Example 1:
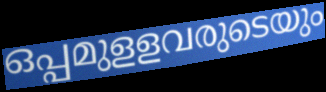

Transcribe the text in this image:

ഒപ്പമുളളവരുടെയും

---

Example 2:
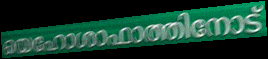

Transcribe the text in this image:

യെഹോശാഫാത്തിനോട്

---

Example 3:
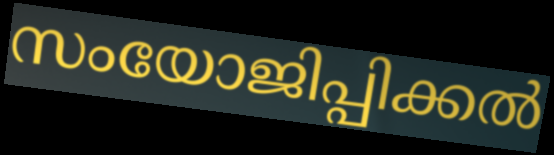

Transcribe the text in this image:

സംയോജിപ്പിക്കൽ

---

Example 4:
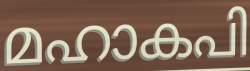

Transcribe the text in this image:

മഹാകപി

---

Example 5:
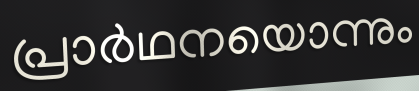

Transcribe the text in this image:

പ്രാർഥനയൊന്നും